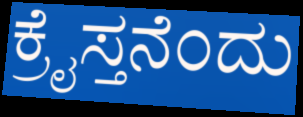
ಕ್ರೈಸ್ತನೆಂದು